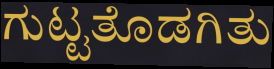
ಗುಟ್ಟತೊಡಗಿತು